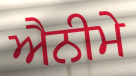
ਐਨੀਮੇ